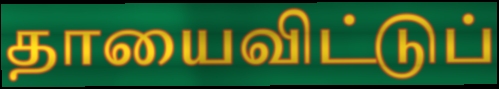
தாயைவிட்டுப்